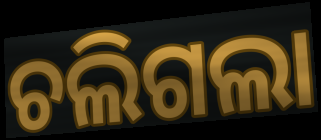
ଚଲିଗଲା